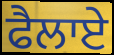
ਫੈਲਾਏ